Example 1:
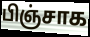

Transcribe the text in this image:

பிஞ்சாக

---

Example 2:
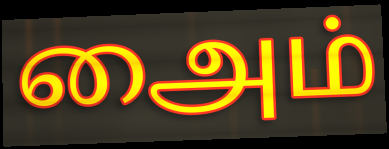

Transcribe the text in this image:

அைம்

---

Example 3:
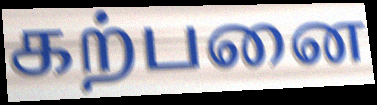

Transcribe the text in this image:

கற்பனை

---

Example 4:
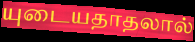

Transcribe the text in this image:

யுடையதாதலால்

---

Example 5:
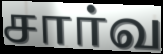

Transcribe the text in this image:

சார்வ